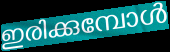
ഇരിക്കുമ്പോൾ